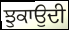
ਝੁਕਾਉਦੀ